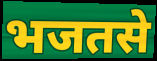
भजतसे